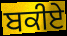
ਬਕੀਏ